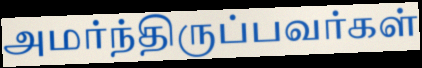
அமர்ந்திருப்பவர்கள்